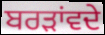
ਬਰੜਾਂਵਦੇ